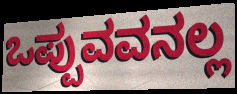
ಒಪ್ಪುವವನಲ್ಲ